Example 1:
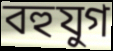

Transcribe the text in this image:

বহুযুগ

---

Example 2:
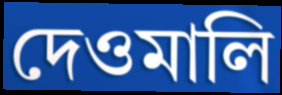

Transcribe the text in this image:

দেওমালি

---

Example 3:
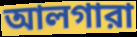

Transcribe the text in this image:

আলগারা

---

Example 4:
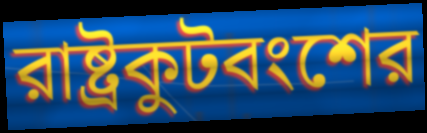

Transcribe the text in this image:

রাষ্ট্রকুটবংশের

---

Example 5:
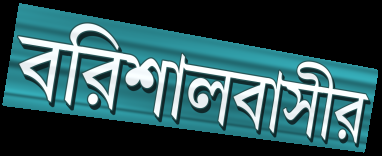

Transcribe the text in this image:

বরিশালবাসীর